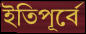
ইতিপূর্বে